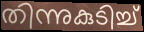
തിന്നുകുടിച്ച്